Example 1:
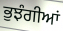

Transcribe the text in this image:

ਭੁਝੰਗੀਆਂ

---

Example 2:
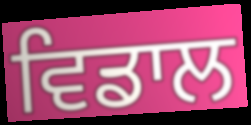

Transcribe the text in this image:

ਵਿਡਾਲ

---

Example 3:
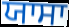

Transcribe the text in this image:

ਯਾਸਾ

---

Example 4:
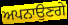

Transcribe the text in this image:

ਅਪਨਾਉਣਗੇ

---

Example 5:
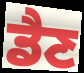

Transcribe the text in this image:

ਡੈਣ